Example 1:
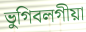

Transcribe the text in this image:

ভুগিবলগীয়া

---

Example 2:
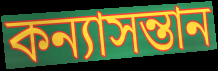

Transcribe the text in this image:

কন্যাসন্তান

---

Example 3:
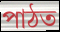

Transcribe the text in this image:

পাঠত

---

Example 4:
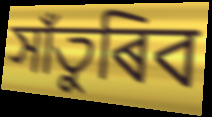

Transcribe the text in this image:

সাঁতুৰিব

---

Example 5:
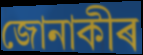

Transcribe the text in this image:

জোনাকীৰ